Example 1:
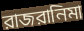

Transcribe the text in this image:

রাজরানিমা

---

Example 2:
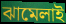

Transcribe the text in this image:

ঝামেলাই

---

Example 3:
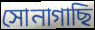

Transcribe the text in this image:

সোনাগাছি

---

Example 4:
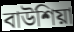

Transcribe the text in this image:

বাউশিয়া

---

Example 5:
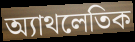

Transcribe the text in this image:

অ্যাথলেতিক